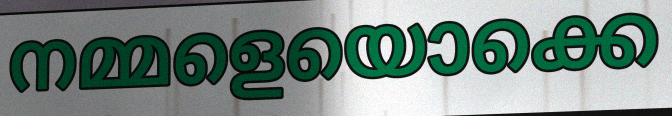
നമ്മളെയൊക്കെ